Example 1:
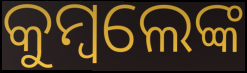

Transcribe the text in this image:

କୁମ୍ବଲେଙ୍କ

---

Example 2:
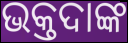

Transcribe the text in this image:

ଭକ୍ତଦାଙ୍କ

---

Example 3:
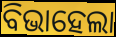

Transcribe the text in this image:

ବିଭାହେଲା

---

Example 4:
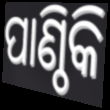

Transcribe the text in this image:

ପାଣ୍ଠିକି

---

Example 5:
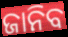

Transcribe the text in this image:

ଜାନିବ